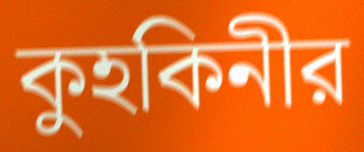
কুহকিনীর